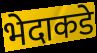
भेदाकडे